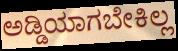
ಅಡ್ಡಿಯಾಗಬೇಕಿಲ್ಲ